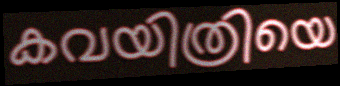
കവയിത്രിയെ